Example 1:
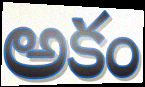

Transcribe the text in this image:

అకం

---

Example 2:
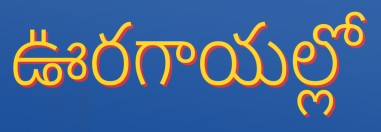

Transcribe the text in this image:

ఊరగాయల్లో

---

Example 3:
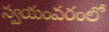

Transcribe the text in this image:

స్వయంవరంలో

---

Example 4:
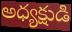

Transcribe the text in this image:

అధ్యక్షుడి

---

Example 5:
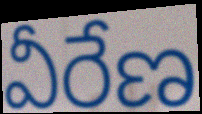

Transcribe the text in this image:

వీరేణ